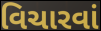
વિચારવાં